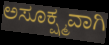
ಅಸೂಕ್ಷ್ಮವಾಗಿ